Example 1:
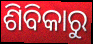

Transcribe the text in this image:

ଶିବିକାରୁ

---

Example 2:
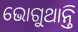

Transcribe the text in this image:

ଭୋଗୁଥାନ୍ତି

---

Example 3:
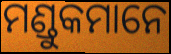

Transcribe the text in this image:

ମଣ୍ଡୁକମାନେ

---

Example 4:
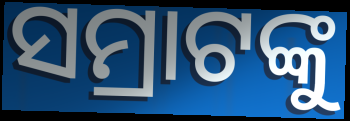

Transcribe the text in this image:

ସମ୍ରାଟଙ୍କୁ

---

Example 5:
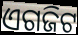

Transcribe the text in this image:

ଏଗଜିଟ